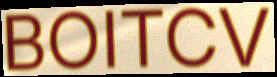
BOITCV